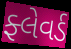
ફ્લેવર્ડ